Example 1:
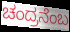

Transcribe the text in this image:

ಚಂದ್ರನೆಂಬ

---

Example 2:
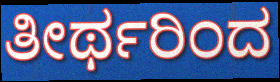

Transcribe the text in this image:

ತೀರ್ಥರಿಂದ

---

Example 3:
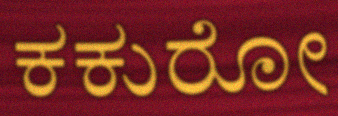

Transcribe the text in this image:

ಕಕುರೋ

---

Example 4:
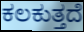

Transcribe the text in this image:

ಕಲಕುತ್ತದೆ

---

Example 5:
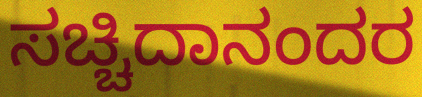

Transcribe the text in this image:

ಸಚ್ಚಿದಾನಂದರ